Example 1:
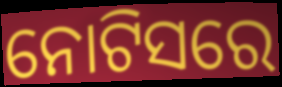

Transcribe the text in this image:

ନୋଟିସରେ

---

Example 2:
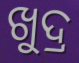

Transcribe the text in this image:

ଖୁଦ୍ର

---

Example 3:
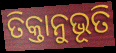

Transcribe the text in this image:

ତିକ୍ତାନୁଭୂତି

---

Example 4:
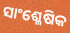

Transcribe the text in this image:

ସାଂଶ୍ଳେଷିକ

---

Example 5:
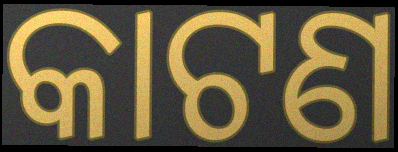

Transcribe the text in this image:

କାଟଣ